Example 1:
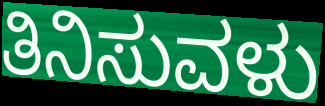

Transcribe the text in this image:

ತಿನಿಸುವಳು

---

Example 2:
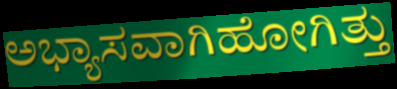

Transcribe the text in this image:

ಅಭ್ಯಾಸವಾಗಿಹೋಗಿತ್ತು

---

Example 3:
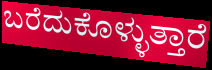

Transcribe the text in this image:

ಬರೆದುಕೊಳ್ಳುತ್ತಾರೆ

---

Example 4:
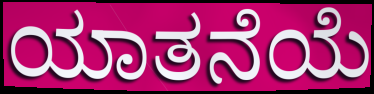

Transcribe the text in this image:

ಯಾತನೆಯೆ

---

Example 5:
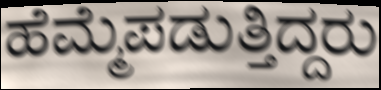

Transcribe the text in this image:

ಹೆಮ್ಮೆಪಡುತ್ತಿದ್ದರು